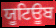
ਯੂਟਿਊਬ